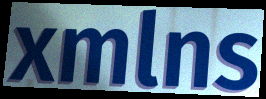
xmlns